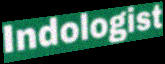
Indologist